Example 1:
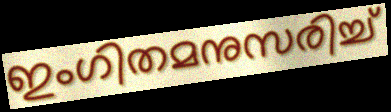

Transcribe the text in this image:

ഇംഗിതമനുസരിച്ച്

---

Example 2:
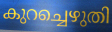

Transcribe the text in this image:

കുറച്ചെഴുതി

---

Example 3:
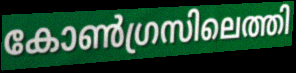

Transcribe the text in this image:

കോൺഗ്രസിലെത്തി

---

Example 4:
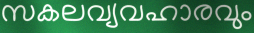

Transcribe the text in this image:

സകലവ്യവഹാരവും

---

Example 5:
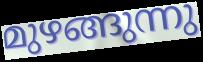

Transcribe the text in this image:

മുഴങ്ങുന്നു